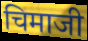
चिमाजी